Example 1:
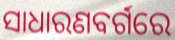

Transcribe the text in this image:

ସାଧାରଣବର୍ଗରେ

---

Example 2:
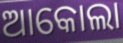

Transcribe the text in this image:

ଆକୋଲା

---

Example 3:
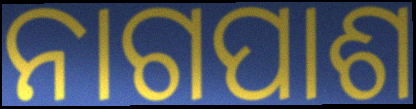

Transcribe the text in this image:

ନାଗପାଶ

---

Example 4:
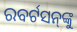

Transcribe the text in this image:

ରବର୍ଟସନ୍‌ଙ୍କୁ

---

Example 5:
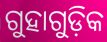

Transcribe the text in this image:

ଗୁହାଗୁଡ଼ିକ